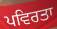
ਪਵਿਰਤਾ